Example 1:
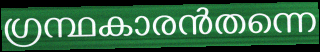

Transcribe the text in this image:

ഗ്രന്ഥകാരൻതന്നെ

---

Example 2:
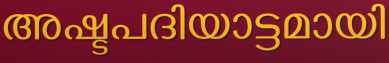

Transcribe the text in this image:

അഷ്ടപദിയാട്ടമായി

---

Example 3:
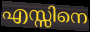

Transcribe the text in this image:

എസ്സിനെ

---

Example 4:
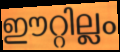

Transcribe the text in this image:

ഈറ്റില്ലം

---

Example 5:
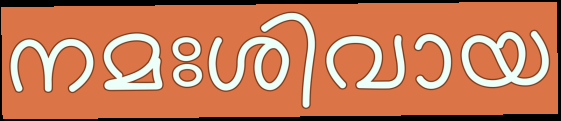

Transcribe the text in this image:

നമഃശിവായ